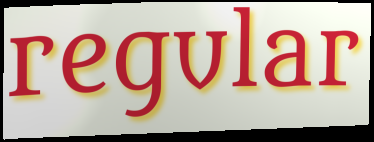
regular